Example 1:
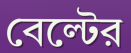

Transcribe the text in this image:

বেল্টের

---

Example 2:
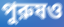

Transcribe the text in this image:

পুরুষও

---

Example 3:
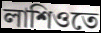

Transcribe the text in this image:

লাশিওতে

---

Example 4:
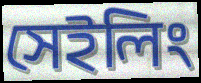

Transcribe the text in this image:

সেইলিং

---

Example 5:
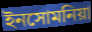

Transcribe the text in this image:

ইনসোমনিয়া